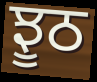
ਝੂਠ